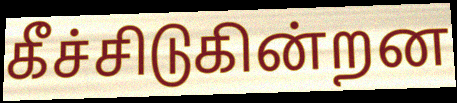
கீச்சிடுகின்றன